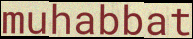
muhabbat